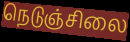
நெடுஞ்சிலை